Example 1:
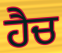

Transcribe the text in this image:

ਹੈਚ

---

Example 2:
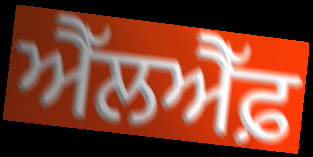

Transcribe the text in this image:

ਐੱਲਐੱਫ਼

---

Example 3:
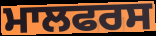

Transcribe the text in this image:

ਮਾਲਫਰਸ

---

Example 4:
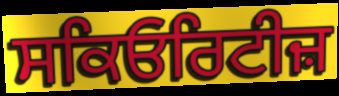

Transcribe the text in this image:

ਸਕਿਓਰਿਟੀਜ਼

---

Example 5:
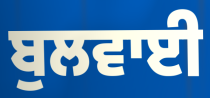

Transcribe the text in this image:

ਬੁਲਵਾਈ